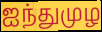
ஐந்துமுழ